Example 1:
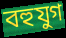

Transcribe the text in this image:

বহুযুগ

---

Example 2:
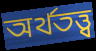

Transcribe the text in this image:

অৰ্থতত্ত্ব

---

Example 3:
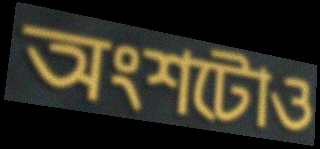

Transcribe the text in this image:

অংশটোও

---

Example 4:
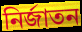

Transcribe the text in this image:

নিৰ্জাতন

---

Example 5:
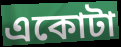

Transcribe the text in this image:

একোটা